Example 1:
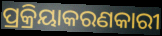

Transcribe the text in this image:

ପ୍ରକ୍ରିୟାକରଣକାରୀ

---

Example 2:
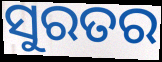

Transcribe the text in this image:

ସୁରତର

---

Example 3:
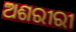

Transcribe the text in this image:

ଅଶରୀରୀ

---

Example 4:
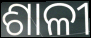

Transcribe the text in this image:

ଶାଳୀ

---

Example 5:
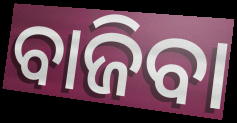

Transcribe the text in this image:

ବାଜିବା